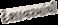
દેશાવરમાંથી